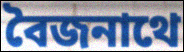
বৈজনাথে